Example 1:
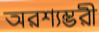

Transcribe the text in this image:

অৱশ্যম্ভৱী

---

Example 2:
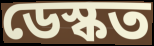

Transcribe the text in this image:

ডেস্কত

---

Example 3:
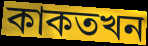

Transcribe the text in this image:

কাকতখন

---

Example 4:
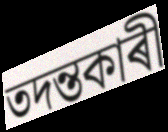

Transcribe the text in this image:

তদন্তকাৰী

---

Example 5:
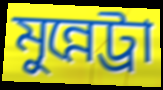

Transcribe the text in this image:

মুন্নেট্ৰা